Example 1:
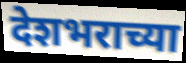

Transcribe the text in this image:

देशभराच्या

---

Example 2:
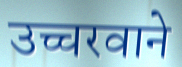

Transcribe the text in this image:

उच्चरवाने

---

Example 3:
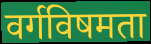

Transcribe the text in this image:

वर्गविषमता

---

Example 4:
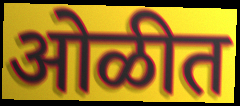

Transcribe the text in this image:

ओळीत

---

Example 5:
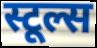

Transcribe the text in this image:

स्टूल्स